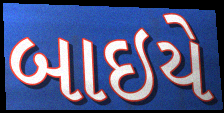
બાઇયે